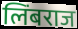
लिंबराज